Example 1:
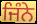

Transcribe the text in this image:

ਜਿੰਨੇ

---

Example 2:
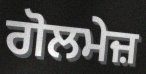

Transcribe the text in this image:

ਗੋਲਮੇਜ਼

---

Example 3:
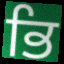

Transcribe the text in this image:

ਭਿ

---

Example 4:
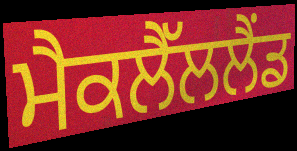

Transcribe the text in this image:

ਮੈਕਲੈੱਲਲੈਂਡ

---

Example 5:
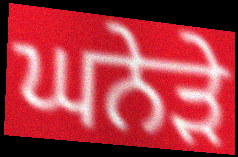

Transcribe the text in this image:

ਘਨੇੜੇ